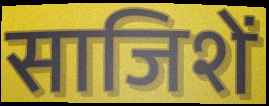
साजिशें